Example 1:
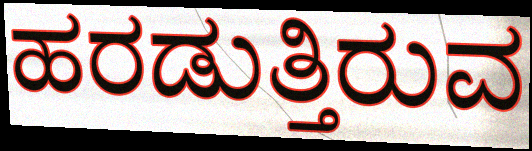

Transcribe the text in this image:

ಹರಡುತ್ತಿರುವ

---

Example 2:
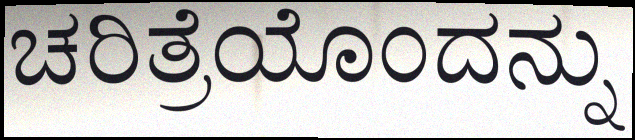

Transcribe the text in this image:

ಚರಿತ್ರೆಯೊಂದನ್ನು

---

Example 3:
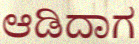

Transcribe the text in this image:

ಆಡಿದಾಗ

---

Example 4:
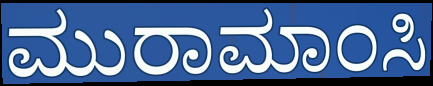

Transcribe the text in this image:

ಮುರಾಮಾಂಸಿ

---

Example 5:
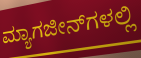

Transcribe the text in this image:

ಮ್ಯಾಗಜೀನ್‌ಗಳಲ್ಲಿ